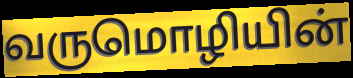
வருமொழியின்